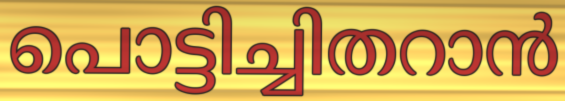
പൊട്ടിച്ചിതറാൻ